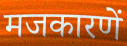
मजकारणें